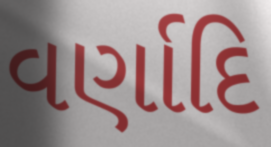
વર્ણાદિ